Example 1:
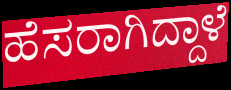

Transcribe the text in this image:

ಹೆಸರಾಗಿದ್ದಾಳೆ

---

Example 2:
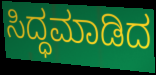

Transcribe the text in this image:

ಸಿದ್ಧಮಾಡಿದ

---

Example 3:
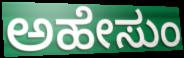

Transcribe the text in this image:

ಅಹೇಸುಂ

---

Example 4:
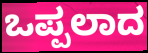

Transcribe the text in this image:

ಒಪ್ಪಲಾದ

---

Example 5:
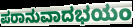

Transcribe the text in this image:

ಪರಾನುವಾದಭಯಂ